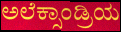
ಅಲೆಕ್ಸಾಂಡ್ರಿಯ